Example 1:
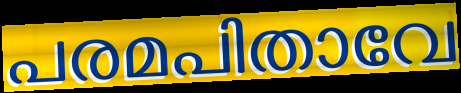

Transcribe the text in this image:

പരമപിതാവേ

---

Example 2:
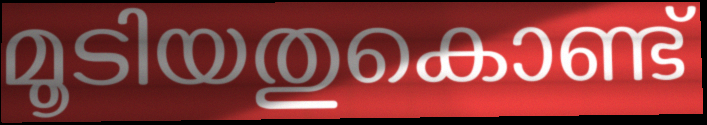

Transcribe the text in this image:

മൂടിയതുകൊണ്ട്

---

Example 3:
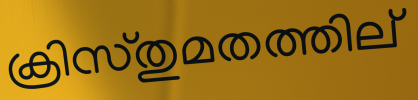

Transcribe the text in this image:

ക്രിസ്തുമതത്തില്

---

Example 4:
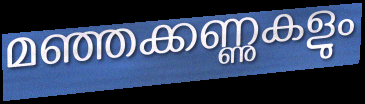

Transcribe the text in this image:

മഞ്ഞക്കണ്ണുകളും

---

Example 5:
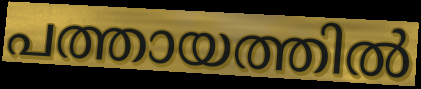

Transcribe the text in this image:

പത്തായത്തിൽ